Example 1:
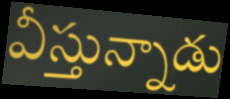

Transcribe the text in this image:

వీస్తున్నాడు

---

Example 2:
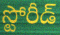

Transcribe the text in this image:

స్టోరీడ్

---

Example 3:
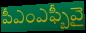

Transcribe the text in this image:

పీఎంఎఫ్బీవై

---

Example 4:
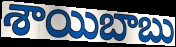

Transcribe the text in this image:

శాయిబాబు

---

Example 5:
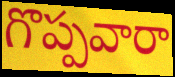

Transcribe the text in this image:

గొప్పవారా